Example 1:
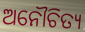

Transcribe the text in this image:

ଅନୌଚିତ୍ୟ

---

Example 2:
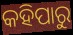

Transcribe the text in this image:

କହିପାରୁ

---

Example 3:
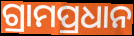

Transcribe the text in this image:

ଗ୍ରାମପ୍ରଧାନ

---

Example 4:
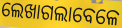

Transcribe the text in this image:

ଲେଖାଗଲାବେଳେ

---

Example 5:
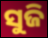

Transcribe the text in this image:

ସୁଜି